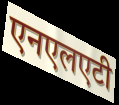
एनएलएटी